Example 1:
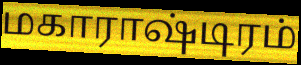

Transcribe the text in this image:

மகாராஷ்டிரம்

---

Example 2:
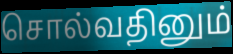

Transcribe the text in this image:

சொல்வதினும்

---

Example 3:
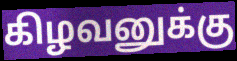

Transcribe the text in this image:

கிழவனுக்கு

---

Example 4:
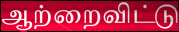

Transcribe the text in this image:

ஆற்றைவிட்டு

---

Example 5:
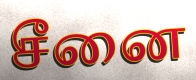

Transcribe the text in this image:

சீனை